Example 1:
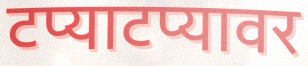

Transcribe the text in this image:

टप्याटप्यावर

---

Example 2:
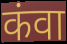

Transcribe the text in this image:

कंवा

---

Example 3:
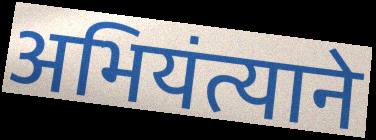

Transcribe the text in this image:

अभियंत्याने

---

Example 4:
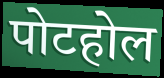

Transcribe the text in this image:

पोटहोल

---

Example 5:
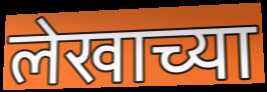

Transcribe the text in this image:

लेखाच्या